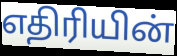
எதிரியின்